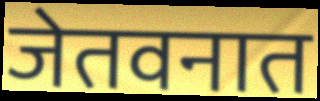
जेतवनात